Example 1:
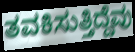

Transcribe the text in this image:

ತವಕಿಸುತ್ತಿದ್ದೆವು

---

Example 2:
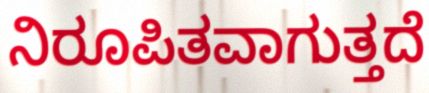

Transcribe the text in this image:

ನಿರೂಪಿತವಾಗುತ್ತದೆ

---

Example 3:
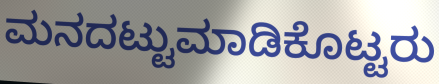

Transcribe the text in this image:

ಮನದಟ್ಟುಮಾಡಿಕೊಟ್ಟರು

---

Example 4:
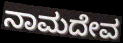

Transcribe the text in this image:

ನಾಮದೇವ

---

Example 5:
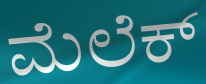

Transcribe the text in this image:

ಮೆಲೆಕ್